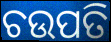
ଚଉପତି